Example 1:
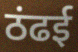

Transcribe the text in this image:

ठंढई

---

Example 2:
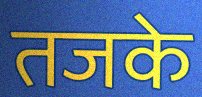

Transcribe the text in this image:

तजके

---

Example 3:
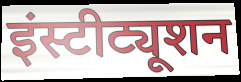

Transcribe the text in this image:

इंस्‍टीट्यूशन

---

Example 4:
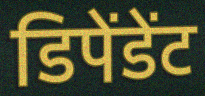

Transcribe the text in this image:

डिपेंडेंट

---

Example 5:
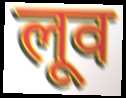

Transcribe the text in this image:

लूव